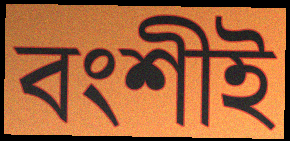
বংশীই